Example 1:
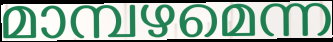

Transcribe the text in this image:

മാമ്പഴമെന്ന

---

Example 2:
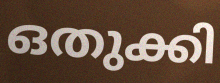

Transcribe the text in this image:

ഒതുക്കി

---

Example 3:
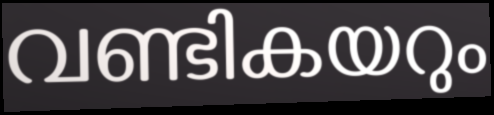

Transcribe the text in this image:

വണ്ടികയറും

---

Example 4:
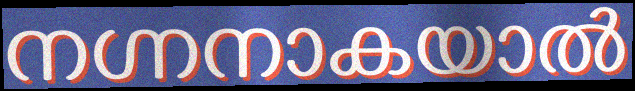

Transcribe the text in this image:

നഗ്നനാകയാൽ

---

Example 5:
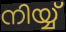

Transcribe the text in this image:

നിയ്യ്